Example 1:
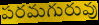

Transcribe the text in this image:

పరమగురువు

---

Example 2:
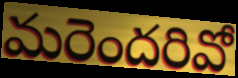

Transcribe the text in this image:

మరెందరివో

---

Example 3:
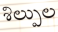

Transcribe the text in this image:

శిల్పుల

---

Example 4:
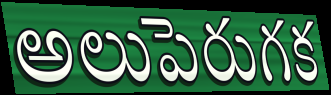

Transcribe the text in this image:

అలుపెరుగక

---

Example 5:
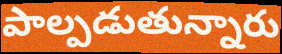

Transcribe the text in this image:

పాల్పడుతున్నారు